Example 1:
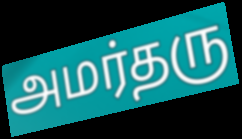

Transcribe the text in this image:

அமர்தரு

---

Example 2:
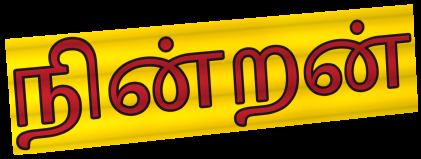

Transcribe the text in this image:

நின்றன்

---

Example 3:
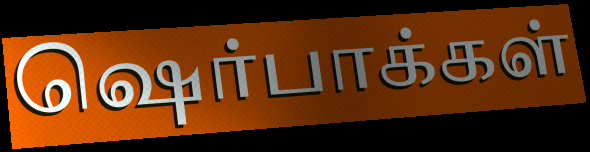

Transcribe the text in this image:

ஷெர்பாக்கள்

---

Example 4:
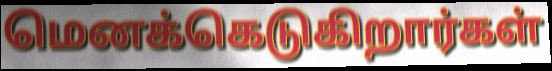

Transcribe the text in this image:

மெனக்கெடுகிறார்கள்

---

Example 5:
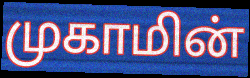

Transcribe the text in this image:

முகாமின்